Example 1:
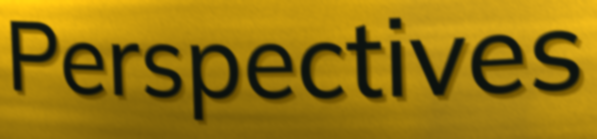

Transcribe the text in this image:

Perspectives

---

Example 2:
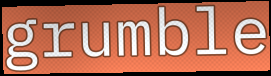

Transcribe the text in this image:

grumble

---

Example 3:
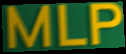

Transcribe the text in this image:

MLP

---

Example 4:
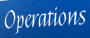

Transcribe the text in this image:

Operations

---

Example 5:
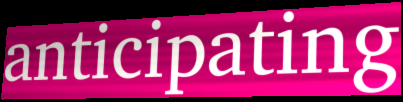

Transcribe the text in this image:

anticipating